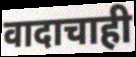
वादाचाही